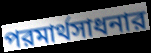
পরমার্থসাধনার